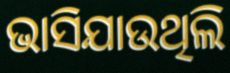
ଭାସିଯାଉଥିଲି